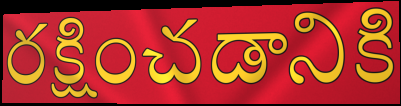
రక్షించడానికి